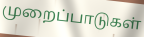
முறைப்பாடுகள்